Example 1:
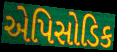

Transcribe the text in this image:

એપિસોડિક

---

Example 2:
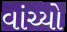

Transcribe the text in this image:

વાંચ્યો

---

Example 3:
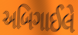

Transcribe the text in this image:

અબિગાઈલે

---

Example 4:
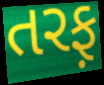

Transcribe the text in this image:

તરફ઼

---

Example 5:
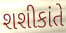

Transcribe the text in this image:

શશીકાંતે